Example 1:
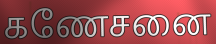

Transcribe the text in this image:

கணேசனை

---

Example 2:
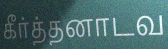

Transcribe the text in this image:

கீர்த்தனாடவ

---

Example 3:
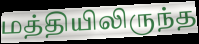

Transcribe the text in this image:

மத்தியிலிருந்த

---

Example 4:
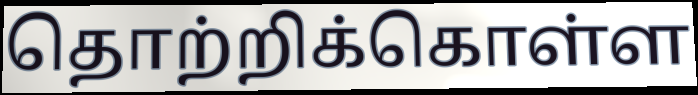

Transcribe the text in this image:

தொற்றிக்கொள்ள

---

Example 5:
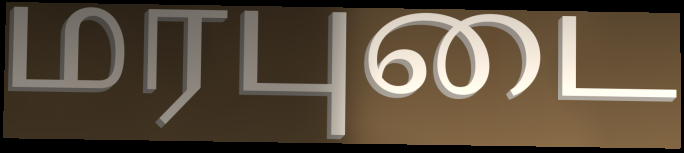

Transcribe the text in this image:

மரபுடை